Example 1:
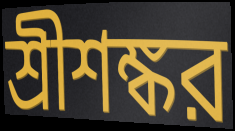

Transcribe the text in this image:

শ্রীশঙ্কর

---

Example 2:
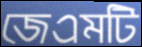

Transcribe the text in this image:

জেএমটি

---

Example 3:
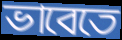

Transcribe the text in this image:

ভাবেতে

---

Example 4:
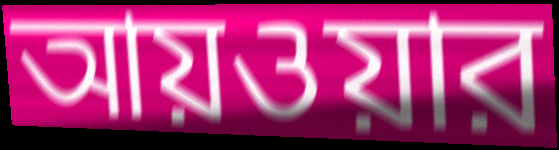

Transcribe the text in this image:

আয়ওয়ার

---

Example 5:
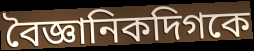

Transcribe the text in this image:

বৈজ্ঞানিকদিগকে